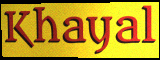
Khayal